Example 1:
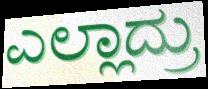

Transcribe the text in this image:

ಎಲ್ಲಾದ್ರು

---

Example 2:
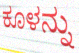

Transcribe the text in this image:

ಕೂಳನ್ನು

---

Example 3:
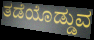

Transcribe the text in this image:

ತಡೆಯೊಡ್ಡುವ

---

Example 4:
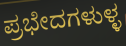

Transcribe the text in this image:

ಪ್ರಭೇದಗಳುಳ್ಳ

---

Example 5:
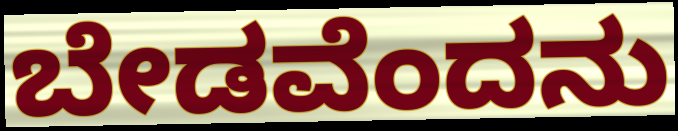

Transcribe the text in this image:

ಬೇಡವೆಂದನು